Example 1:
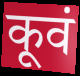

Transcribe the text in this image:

कूवं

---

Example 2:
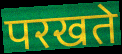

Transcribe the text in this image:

परखते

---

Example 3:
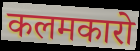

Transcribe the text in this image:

कलमकारो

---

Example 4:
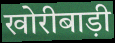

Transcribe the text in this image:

खोरीबाड़ी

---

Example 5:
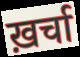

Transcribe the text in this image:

ख़र्चा